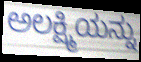
ಅಲಕ್ಷ್ಮಿಯನ್ನು